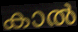
കാൽ